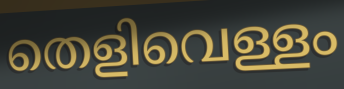
തെളിവെള്ളം